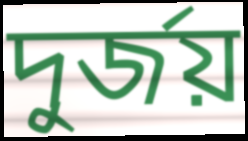
দুৰ্জয়